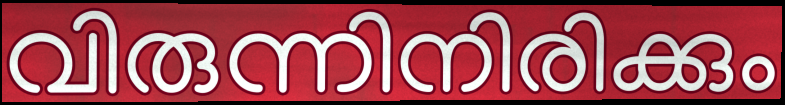
വിരുന്നിനിരിക്കും